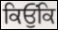
ਕਿਓੁਂਕਿ